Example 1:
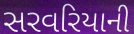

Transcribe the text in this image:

સરવરિયાની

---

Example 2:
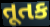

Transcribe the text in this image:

તૂતક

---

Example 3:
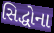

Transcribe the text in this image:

સિદ્ધોના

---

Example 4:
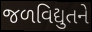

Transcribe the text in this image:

જળવિદ્યુતને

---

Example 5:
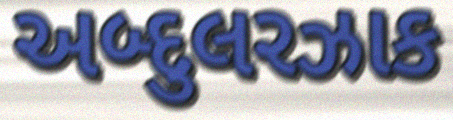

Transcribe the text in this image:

અબ્દુલરઝાક